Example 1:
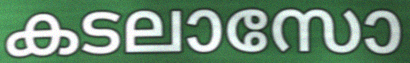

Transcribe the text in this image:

കടലാസോ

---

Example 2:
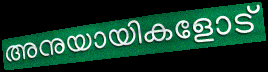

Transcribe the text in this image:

അനുയായികളോട്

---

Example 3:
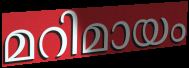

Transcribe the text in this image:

മറിമായം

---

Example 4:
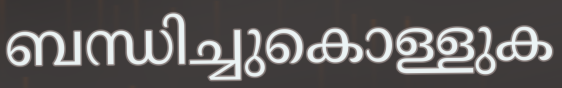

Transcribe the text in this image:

ബന്ധിച്ചുകൊള്ളുക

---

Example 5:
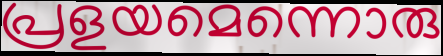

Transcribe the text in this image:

പ്രളയമെന്നൊരു